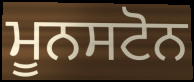
ਮੂਨਸਟੋਨ